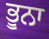
ਭੂਨਾ